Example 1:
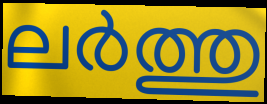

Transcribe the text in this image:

ലർത്തു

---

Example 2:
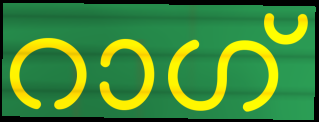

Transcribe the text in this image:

റാഗ്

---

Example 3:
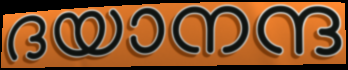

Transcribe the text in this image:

ദയാനന്ദ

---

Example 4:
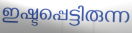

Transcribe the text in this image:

ഇഷ്ടപ്പെട്ടിരുന്ന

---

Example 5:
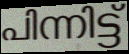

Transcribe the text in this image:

പിന്നിട്ട്